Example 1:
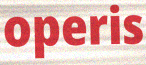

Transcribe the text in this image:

operis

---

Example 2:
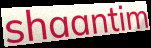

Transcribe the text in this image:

shaantim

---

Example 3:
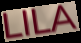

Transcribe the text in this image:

LILA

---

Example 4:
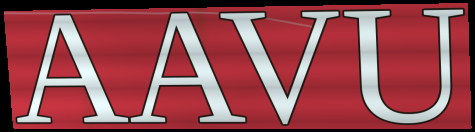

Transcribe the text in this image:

AAVU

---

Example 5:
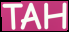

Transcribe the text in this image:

TAH